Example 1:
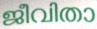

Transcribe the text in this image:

ജീവിതാ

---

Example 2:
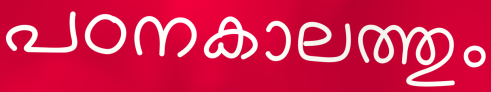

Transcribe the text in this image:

പഠനകാലത്തും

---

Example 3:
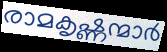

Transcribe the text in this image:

രാമകൃഷ്ണന്മാർ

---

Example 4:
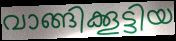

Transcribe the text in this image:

വാങ്ങിക്കൂട്ടിയ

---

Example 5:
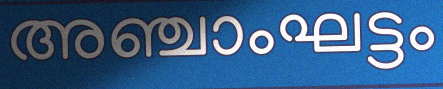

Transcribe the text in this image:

അഞ്ചാംഘട്ടം